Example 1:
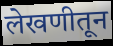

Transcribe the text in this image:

लेखणीतून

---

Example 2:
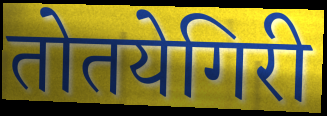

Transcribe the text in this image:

तोतयेगिरी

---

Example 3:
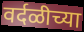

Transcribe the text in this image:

वर्दळीच्या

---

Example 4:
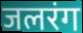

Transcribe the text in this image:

जलरंग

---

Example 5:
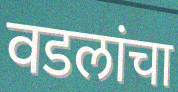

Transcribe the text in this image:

वडलांचा